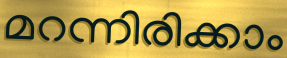
മറന്നിരിക്കാം